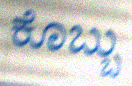
ಕೊಬ್ಬು